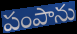
పంపాను